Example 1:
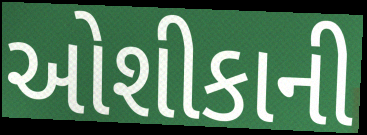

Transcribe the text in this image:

ઓશીકાની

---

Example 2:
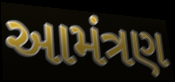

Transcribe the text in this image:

આમંત્રણ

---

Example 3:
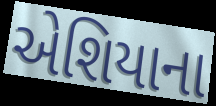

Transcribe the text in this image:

એશિયાના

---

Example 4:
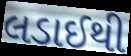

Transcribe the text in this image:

લડાઈથી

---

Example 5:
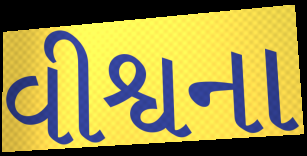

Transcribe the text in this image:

વીશ્વના